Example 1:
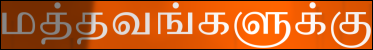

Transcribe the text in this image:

மத்தவங்களுக்கு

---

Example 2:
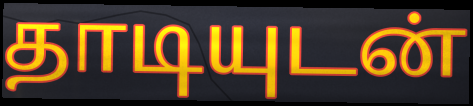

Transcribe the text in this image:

தாடியுடன்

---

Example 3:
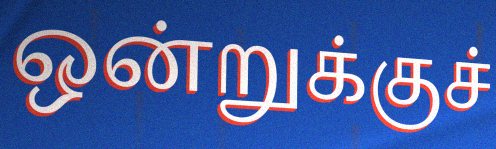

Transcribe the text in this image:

ஒன்றுக்குச்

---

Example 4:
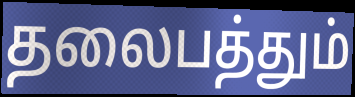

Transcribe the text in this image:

தலைபத்தும்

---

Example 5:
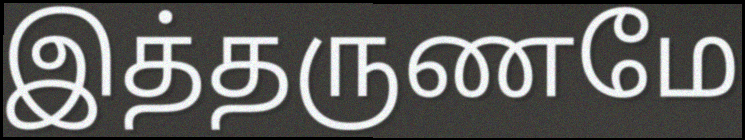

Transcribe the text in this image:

இத்தருணமே